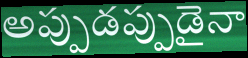
అప్పుడప్పుడైనా